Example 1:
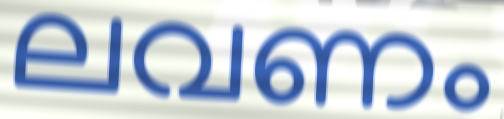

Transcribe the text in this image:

ലവണം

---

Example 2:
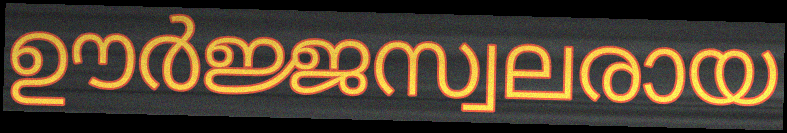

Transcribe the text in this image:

ഊർജ്ജസ്വലരായ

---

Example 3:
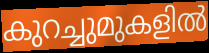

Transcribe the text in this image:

കുറച്ചുമുകളിൽ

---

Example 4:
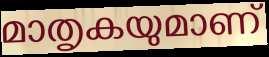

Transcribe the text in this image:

മാതൃകയുമാണ്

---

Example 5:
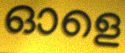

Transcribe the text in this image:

ഓളെ